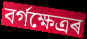
বৰ্গক্ষেত্ৰৰ